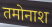
तमोनाश